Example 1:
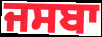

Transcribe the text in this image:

ਜਸਬਾ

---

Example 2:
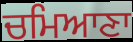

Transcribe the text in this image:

ਚਮਿਆਣਾ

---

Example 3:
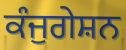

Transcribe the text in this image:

ਕੰਜੁਗੇਸ਼ਨ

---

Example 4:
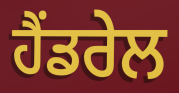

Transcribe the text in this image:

ਹੈਂਡਰੇਲ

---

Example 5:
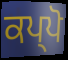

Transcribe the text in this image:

ਕਪ੍ਪੋ